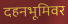
दहनभूमिवर